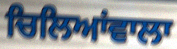
ਚਿਲਿਆਂਵਾਲਾ